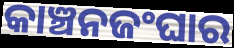
କାଞ୍ଚନଜଂଘାର